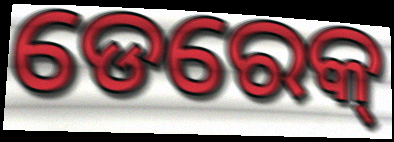
ଡେରେକ୍